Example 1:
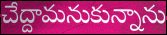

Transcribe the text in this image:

చేద్దామనుకున్నాను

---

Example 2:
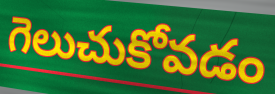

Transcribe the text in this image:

గెలుచుకోవడం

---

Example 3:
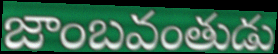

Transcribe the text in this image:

జాంబవంతుడు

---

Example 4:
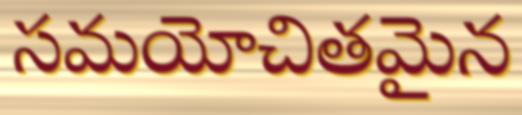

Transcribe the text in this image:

సమయోచితమైన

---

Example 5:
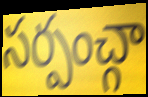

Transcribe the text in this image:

సర్పంచ్గా